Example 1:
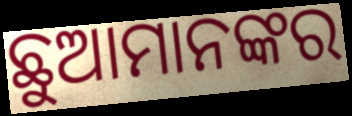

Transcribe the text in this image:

ଛୁଆମାନଙ୍କର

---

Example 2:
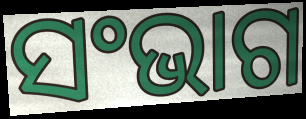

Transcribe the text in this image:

ସଂଭାଗ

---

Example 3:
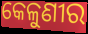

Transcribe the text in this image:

କେଳୁଣୀର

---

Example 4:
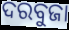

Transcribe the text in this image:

ଦରବୁଜା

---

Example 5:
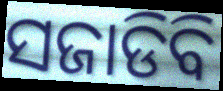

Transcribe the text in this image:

ସଜାଡିବି